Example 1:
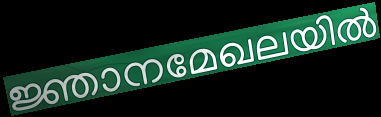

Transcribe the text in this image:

ജ്ഞാനമേഖലയിൽ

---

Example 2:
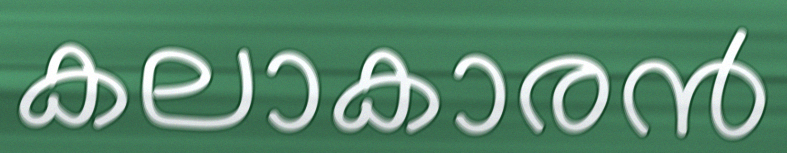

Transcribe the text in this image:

കലാകാരൻ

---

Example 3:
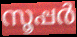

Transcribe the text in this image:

സൂപ്പർ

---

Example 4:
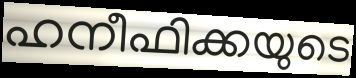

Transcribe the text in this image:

ഹനീഫിക്കയുടെ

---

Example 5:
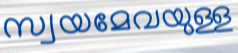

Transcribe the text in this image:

സ്വയമേവയുള്ള